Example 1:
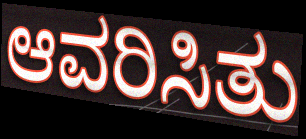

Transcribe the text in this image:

ಆವರಿಸಿತು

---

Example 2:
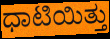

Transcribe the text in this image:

ಧಾಟಿಯಿತ್ತು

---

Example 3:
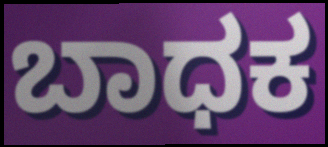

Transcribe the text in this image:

ಬಾಧಕ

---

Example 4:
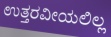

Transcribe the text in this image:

ಉತ್ತರವೀಯಲಿಲ್ಲ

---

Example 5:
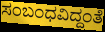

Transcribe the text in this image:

ಸಂಬಂಧವಿದ್ದಂತೆ